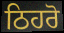
ਠਿਹਰੋ